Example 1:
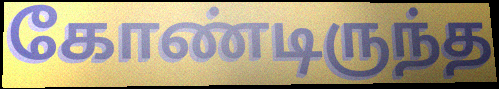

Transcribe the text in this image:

கோண்டிருந்த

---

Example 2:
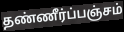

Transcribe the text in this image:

தண்ணீர்ப்பஞ்சம்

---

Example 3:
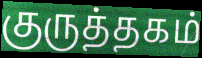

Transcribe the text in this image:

குருத்தகம்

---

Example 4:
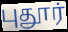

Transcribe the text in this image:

புதூர்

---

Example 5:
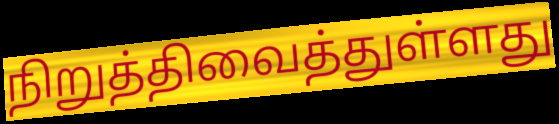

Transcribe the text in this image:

நிறுத்திவைத்துள்ளது